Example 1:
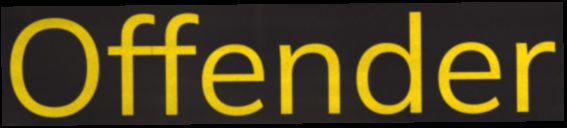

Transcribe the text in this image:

Offender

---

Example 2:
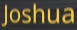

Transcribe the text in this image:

Joshua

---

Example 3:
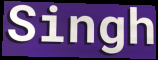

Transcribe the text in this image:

Singh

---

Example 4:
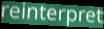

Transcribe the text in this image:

reinterpret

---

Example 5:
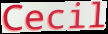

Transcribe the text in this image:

Cecil